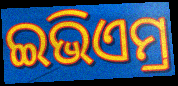
ଇଭିଏମ୍ର